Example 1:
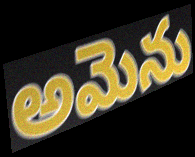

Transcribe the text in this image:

అమెను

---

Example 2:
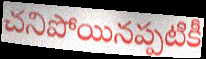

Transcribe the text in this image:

చనిపోయినప్పటికీ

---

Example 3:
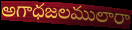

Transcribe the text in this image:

అగాధజలములారా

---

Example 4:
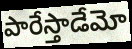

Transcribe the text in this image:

పారేస్తాడేమో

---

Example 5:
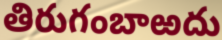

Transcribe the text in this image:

తిరుగంబాఱదు